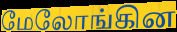
மேலோங்கின